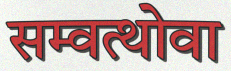
सम्वत्थोवा